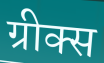
ग्रीक्स